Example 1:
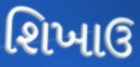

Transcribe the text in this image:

શિખાઉ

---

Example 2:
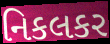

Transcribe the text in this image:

નિકલકર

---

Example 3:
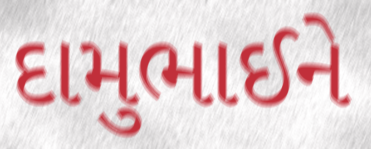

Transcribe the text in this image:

દામુભાઈને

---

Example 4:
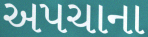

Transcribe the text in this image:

અપચાના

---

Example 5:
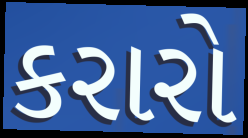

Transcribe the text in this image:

કરારો